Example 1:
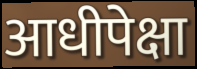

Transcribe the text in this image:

आधीपेक्षा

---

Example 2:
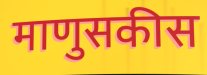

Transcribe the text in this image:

माणुसकीस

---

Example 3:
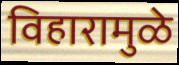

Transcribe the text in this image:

विहारामुळे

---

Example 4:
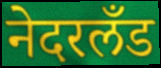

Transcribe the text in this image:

नेदरलँड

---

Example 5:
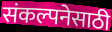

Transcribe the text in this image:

संकल्पनेसाठी